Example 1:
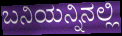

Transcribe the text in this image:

ಬನಿಯನ್ನಿನಲ್ಲಿ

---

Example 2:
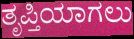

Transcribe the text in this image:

ತೃಪ್ತಿಯಾಗಲು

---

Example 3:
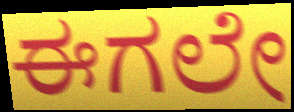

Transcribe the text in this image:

ಈಗಲೇ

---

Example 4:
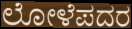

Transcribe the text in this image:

ಲೋಳೆಪದರ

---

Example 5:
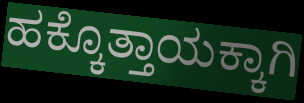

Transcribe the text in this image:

ಹಕ್ಕೊತ್ತಾಯಕ್ಕಾಗಿ